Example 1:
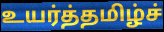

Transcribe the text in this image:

உயர்த்தமிழ்ச்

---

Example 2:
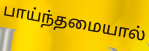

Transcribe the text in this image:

பாய்ந்தமையால்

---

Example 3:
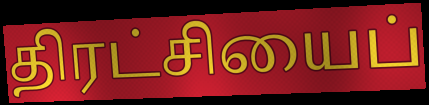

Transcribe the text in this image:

திரட்சியைப்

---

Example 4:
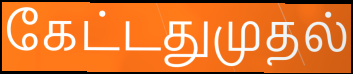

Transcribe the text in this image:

கேட்டதுமுதல்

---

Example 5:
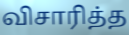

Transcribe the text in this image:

விசாரித்த